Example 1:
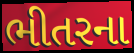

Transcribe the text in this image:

ભીતરના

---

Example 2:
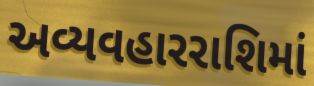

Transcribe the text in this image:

અવ્યવહારરાશિમાં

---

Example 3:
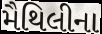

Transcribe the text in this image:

મૈથિલીના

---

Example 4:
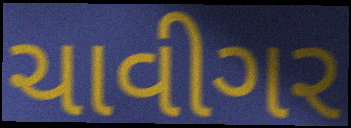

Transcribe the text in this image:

ચાવીગર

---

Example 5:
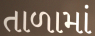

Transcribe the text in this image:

તાળામાં